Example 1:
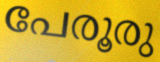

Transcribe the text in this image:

പേരൂരു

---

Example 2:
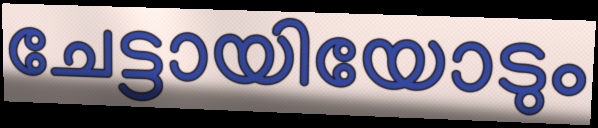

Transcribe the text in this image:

ചേട്ടായിയോടും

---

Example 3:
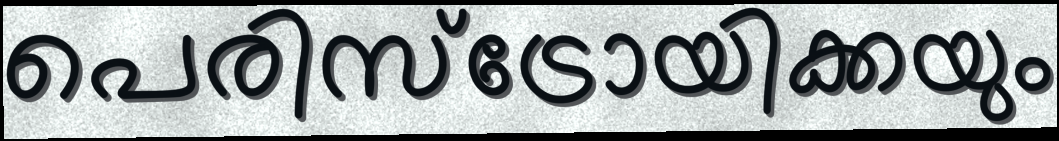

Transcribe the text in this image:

പെരിസ്ട്രോയിക്കയും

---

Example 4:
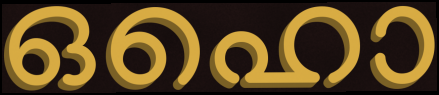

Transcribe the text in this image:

ഒഹൊ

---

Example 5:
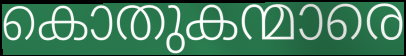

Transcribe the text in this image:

കൊതുകന്മാരെ